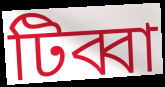
টিব্বা